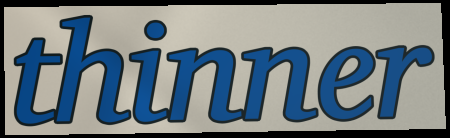
thinner